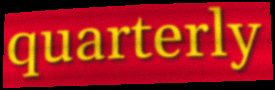
quarterly